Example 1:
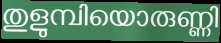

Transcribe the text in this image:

തുളുമ്പിയൊരുണ്ണി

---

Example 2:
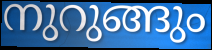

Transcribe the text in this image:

നുറുങ്ങും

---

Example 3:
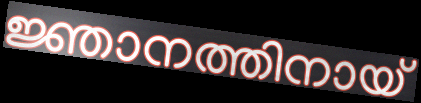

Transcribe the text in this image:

ജ്ഞാനത്തിനായ്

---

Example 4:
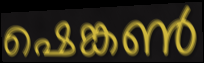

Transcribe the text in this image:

ഷെങ്കൺ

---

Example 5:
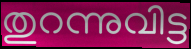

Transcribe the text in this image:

തുറന്നുവിട്ട